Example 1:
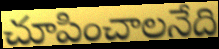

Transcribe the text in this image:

చూపించాలనేది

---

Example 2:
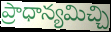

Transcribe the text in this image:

ప్రాధాన్యమిచ్చి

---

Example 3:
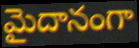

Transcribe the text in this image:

మైదానంగా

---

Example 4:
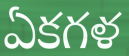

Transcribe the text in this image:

ఏకగళ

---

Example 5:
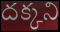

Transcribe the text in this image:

దక్కని